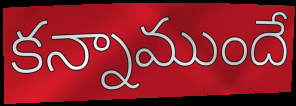
కన్నాముందే